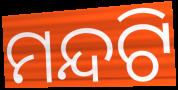
ମନ୍ଦଟି